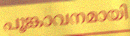
പൂങ്കാവനമായി